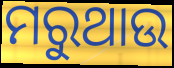
ମରୁଥାଉ